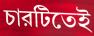
চারটিতেই